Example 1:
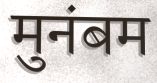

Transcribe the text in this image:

मुनंबम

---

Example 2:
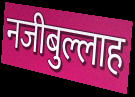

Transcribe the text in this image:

नजीबुल्लाह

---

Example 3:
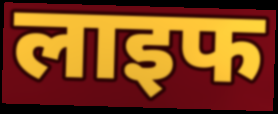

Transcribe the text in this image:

लाइफ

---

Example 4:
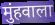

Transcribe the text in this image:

मुंहवाला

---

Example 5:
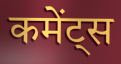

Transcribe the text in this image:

कमेंट्स